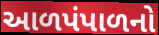
આળપંપાળનો